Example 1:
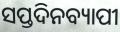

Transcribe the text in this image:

ସପ୍ତଦିନବ୍ୟାପୀ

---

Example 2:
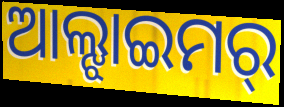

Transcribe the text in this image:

ଆଲ୍ଝାଇମର୍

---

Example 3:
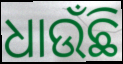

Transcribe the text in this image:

ଧାଉଁଛି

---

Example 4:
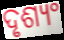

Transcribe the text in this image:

ଦୃଶ୍ୟଂ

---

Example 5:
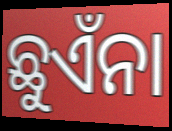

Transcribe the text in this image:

ଛୁଏଁନା